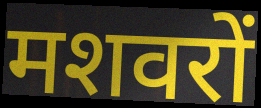
मशवरों